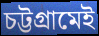
চট্টগ্রামেই